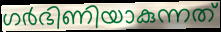
ഗർഭിണിയാകുന്നത്